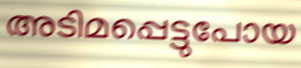
അടിമപ്പെട്ടുപോയ